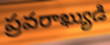
ప్రవరాఖ్యుడి